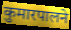
कुमारपालने